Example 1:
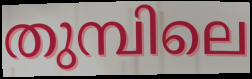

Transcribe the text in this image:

തുമ്പിലെ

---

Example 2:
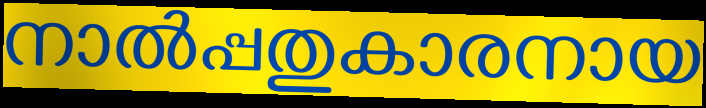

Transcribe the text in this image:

നാൽപ്പതുകാരനായ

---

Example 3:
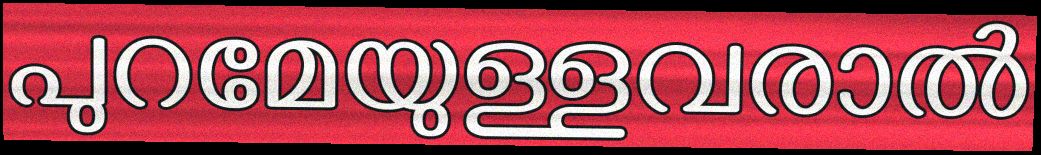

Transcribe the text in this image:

പുറമേയുള്ളവരാൽ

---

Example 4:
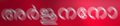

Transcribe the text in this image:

അർജുനനോ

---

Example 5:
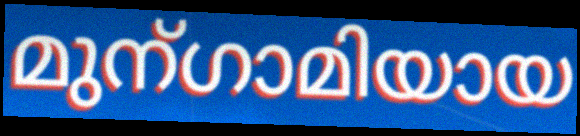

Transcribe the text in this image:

മുന്ഗാമിയായ